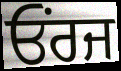
ਓਂਰਜ